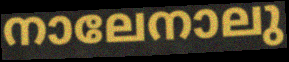
നാലേനാലു